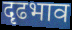
दृढभाव